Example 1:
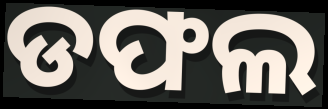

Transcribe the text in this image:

ଡଫଲ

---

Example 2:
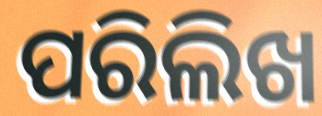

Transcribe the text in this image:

ପରିଲିଖ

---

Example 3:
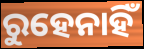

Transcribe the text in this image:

ରୁହେନାହିଁ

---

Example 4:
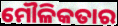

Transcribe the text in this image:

ମୌଳିକତାର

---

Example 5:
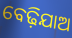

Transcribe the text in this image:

ବେଢ଼ିଯାଅ